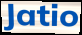
Jatio